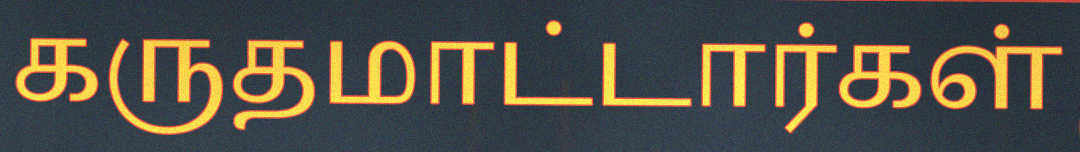
கருதமாட்டார்கள்